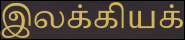
இலக்கியக்